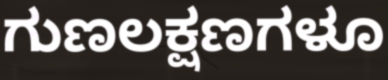
ಗುಣಲಕ್ಷಣಗಳೂ